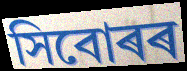
সিবোৰৰ